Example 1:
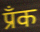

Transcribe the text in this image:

प्रँक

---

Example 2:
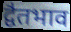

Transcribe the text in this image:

द्वैतभाव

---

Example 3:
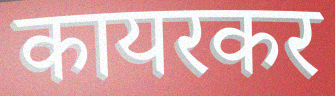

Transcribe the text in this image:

कायरकर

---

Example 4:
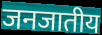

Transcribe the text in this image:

जनजातीय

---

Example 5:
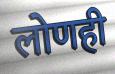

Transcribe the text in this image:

लोणही